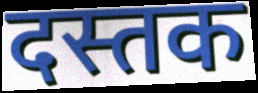
दस्तक